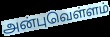
அன்புவெள்ளம்